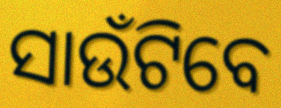
ସାଉଁଟିବେ